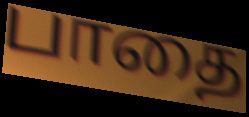
பாதை